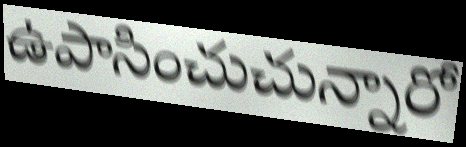
ఉపాసించుచున్నారో